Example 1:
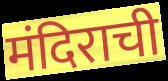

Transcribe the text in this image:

मंदिराची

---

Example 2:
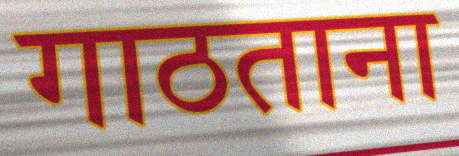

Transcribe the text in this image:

गाठताना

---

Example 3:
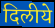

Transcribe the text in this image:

दिलीये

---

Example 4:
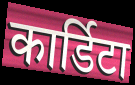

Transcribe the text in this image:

कार्डिटा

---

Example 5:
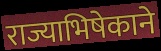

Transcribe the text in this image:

राज्याभिषेकाने